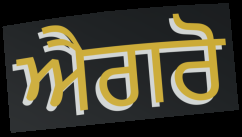
ਐਗਰੋ